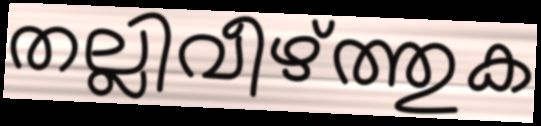
തല്ലിവീഴ്ത്തുക